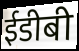
ईडीबी